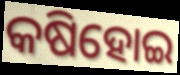
କଷିହୋଇ